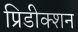
प्रिडीक्शन